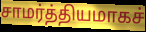
சாமர்த்தியமாகச்